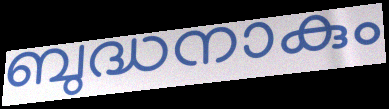
ബുദ്ധനാകും